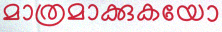
മാത്രമാക്കുകയോ